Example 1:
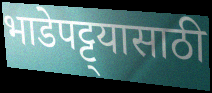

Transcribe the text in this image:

भाडेपट्ट्यासाठी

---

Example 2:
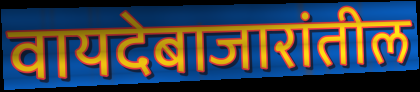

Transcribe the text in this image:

वायदेबाजारांतील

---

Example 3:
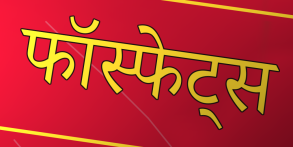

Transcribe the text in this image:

फॉस्फेट्स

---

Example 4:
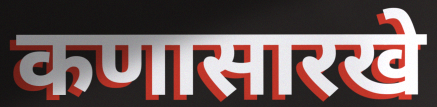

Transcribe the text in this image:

कणासारखे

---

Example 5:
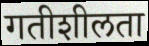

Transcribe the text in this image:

गतीशीलता